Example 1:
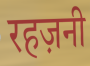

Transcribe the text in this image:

रहज़नी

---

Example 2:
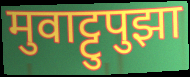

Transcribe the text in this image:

मुवाट्टुपुझा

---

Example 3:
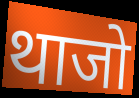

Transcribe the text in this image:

थाजो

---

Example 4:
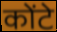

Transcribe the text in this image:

कोंटे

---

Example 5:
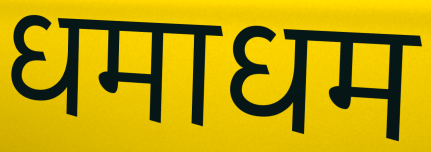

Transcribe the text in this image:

धमाधम